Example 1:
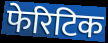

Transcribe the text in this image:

फेरिटिक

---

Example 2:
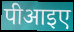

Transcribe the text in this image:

पीआइए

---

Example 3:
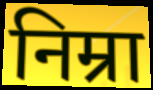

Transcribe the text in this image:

निम्रा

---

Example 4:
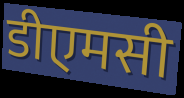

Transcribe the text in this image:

डीएमसी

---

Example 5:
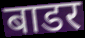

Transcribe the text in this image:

बाडर